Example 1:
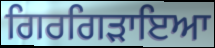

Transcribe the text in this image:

ਗਿਰਗਿੜਾਇਆ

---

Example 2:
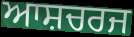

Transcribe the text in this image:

ਆਸ਼ਚਰਜ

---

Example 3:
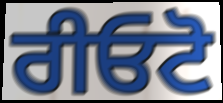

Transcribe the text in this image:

ਰੀਓਟੋ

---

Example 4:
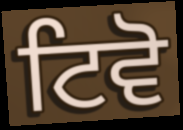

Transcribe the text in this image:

ਟਿਵੋ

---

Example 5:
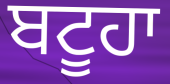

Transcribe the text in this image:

ਬਟੂਹਾ